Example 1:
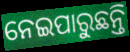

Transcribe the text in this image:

ନେଇପାରୁଛନ୍ତି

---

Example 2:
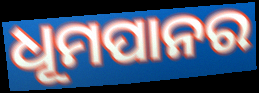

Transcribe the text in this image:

ଧୂମପାନର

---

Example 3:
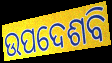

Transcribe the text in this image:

ଉପଦେଶବି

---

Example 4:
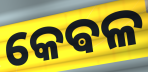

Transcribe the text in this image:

କେଵଳ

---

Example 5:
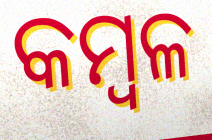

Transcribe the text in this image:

କମ୍ବଳ